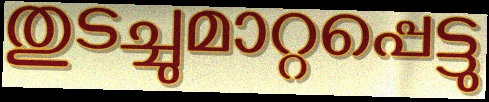
തുടച്ചുമാറ്റപ്പെട്ടു